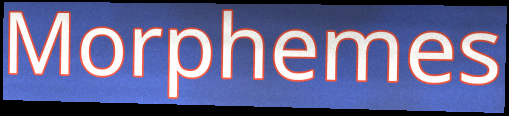
Morphemes